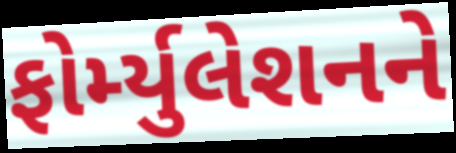
ફોર્મ્યુલેશનને